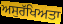
ਅਸੁਰੱਖਿਅਤਾ